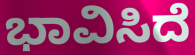
ಭಾವಿಸಿದೆ